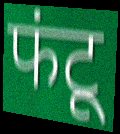
फंटू